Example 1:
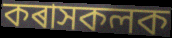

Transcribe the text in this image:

কৰাসকলক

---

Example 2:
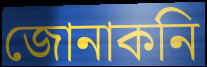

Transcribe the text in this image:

জোনাকনি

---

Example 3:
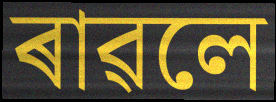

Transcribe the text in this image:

ৰাৱলে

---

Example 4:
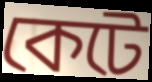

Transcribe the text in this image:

কেটে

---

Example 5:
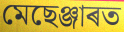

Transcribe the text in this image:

মেছেঞ্জাৰত